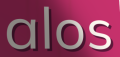
alos